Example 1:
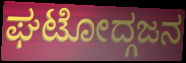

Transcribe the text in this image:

ಘಟೋದ್ಗಜನ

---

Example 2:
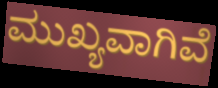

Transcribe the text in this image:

ಮುಖ್ಯವಾಗಿವೆ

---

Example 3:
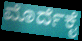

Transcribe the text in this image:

ಮೊರ್ದೆಕೈ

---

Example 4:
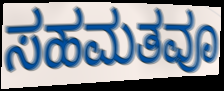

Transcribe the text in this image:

ಸಹಮತವೂ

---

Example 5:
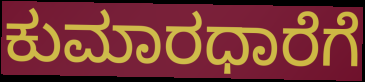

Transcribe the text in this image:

ಕುಮಾರಧಾರೆಗೆ